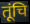
तूंचि